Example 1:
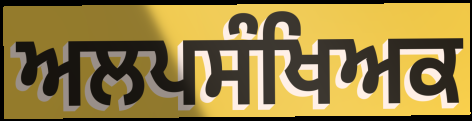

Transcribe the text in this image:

ਅਲਪਸੰਖਿਅਕ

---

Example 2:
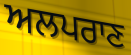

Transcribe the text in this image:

ਅਲਪਰਾਣ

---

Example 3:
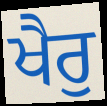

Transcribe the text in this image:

ਖੈਰੁ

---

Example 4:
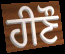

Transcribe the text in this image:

ਹੀਣੌ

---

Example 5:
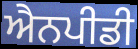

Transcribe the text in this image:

ਐਨਪੀਡੀ